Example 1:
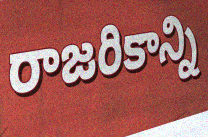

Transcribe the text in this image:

రాజరికాన్ని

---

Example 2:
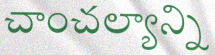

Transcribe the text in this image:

చాంచల్యాన్ని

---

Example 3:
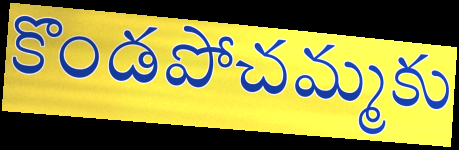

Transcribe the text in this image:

కొండపోచమ్మకు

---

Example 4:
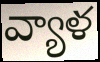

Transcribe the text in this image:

వ్యాళ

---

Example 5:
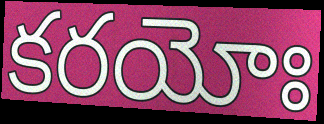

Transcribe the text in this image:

కరయోః